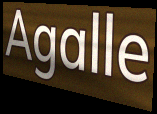
Agalle